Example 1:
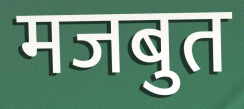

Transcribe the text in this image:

मजबुत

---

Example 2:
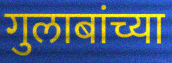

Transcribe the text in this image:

गुलाबांच्या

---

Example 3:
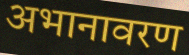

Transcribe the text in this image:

अभानावरण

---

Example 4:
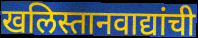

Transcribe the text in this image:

खलिस्तानवाद्यांची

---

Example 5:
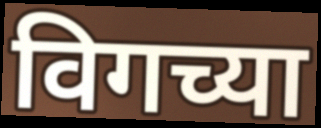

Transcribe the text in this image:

विगच्या